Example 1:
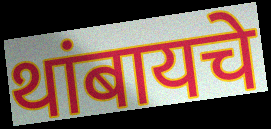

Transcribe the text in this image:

थांबायचे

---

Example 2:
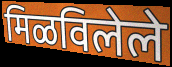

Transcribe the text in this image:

मिळविलेले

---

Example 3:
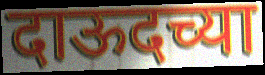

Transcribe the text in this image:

दाऊदच्या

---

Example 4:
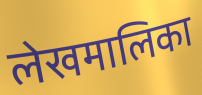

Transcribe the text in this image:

लेखमालिका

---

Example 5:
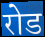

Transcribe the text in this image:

रोड